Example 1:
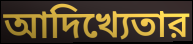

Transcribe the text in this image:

আদিখ্যেতার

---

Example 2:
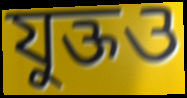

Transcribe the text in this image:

যুক্তও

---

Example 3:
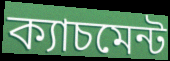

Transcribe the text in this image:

ক্যাচমেন্ট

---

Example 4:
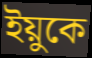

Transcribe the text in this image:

ইয়ুকে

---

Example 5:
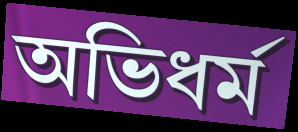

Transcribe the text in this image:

অভিধর্ম